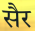
सैर